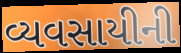
વ્યવસાયીની